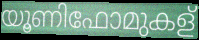
യൂണിഫോമുകള്